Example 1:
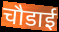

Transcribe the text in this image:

चौडाई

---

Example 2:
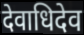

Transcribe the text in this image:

देवाधिदेव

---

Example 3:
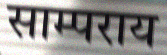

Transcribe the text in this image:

साम्पराय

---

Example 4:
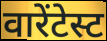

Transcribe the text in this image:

वारेंटेस्ट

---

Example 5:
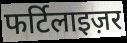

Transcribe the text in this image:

फर्टिलाइज़र